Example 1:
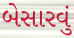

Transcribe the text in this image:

બેસારવું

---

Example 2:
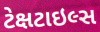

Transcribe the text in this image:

ટેક્ષટાઇલ્સ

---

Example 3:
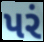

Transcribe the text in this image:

પરં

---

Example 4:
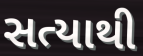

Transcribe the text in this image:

સત્યાથી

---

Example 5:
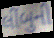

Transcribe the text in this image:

લીંબુની